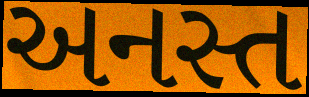
અનસ્ત